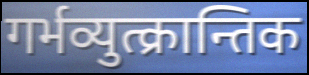
गर्भव्युत्क्रान्तिक